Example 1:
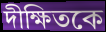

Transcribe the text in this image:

দীক্ষিতকে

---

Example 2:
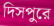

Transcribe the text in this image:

দিসপুরে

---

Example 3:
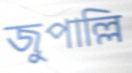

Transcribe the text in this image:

জুপাল্লি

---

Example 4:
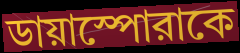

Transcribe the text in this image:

ডায়াস্পোরাকে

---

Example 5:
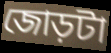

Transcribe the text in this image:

জোড়টা